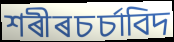
শৰীৰচৰ্চাবিদ